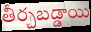
తీర్చబడ్డాయి